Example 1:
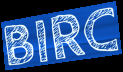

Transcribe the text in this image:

BIRC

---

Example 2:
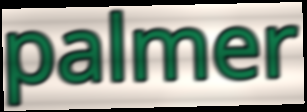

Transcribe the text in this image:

palmer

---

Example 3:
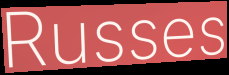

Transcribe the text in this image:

Russes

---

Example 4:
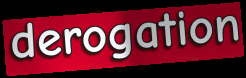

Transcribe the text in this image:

derogation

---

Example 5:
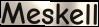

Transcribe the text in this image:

Meskell